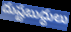
దుష్టబుద్ధులు